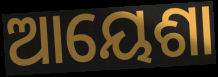
ଆୟେଶା